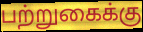
பற்றுகைக்கு